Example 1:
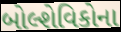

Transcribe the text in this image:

બોલ્શેવિકોના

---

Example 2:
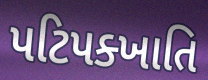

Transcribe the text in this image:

પટિપક્ખાતિ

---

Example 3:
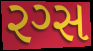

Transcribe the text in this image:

રગ્સ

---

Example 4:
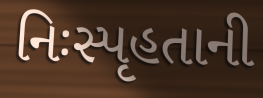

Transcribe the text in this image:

નિઃસ્પૃહતાની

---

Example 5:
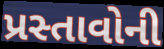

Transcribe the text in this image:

પ્રસ્તાવોની